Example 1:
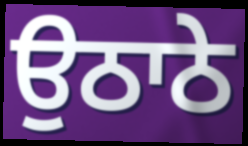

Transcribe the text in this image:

ਉਠਾਠੇ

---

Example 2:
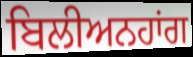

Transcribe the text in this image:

ਬਿਲੀਅਨਹਾਂਗ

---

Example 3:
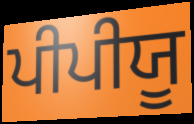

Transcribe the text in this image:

ਪੀਪੀਯੂ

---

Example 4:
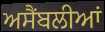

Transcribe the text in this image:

ਅਸੈਂਬਲੀਆਂ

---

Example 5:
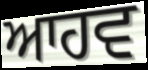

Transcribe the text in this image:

ਆਹਵ